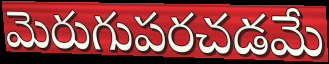
మెరుగుపరచడమే